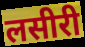
लसीरी